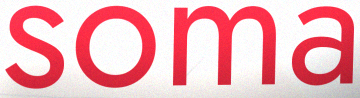
soma